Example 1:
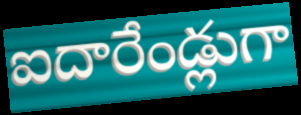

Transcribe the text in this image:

ఐదారేండ్లుగా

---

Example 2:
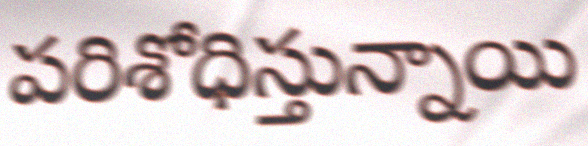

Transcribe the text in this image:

పరిశోధిస్తున్నాయి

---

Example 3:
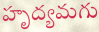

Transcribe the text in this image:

హృద్యమగు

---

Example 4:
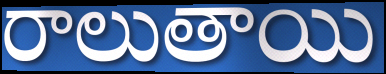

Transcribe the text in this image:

రాలుతాయి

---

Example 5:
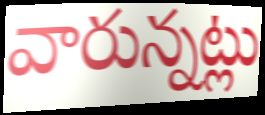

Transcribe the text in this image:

వారున్నట్లు